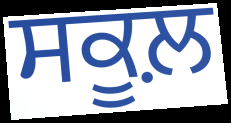
ਸਕੂਲ਼